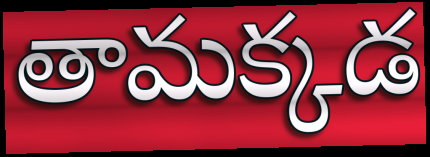
తామక్కడ